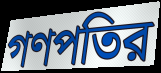
গণপতির